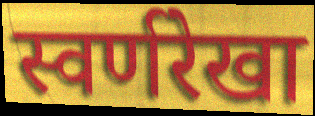
स्वर्णरेखा